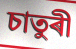
চাতুৰী